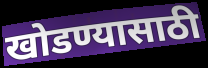
खोडण्यासाठी